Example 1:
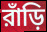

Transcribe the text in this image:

রাঁড়ি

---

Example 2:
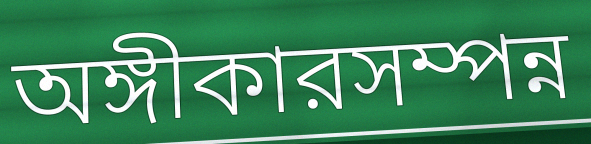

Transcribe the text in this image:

অঙ্গীকারসম্পন্ন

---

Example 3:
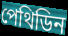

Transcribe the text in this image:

পেথিডিন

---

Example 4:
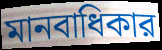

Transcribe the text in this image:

মানবাধিকার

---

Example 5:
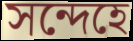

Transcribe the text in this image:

সন্দেহে